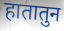
हातातुन